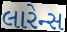
લારેન્સ